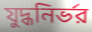
যুদ্ধনির্ভর